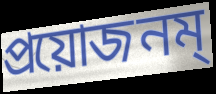
প্রয়োজনম্